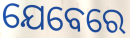
ଯେବେରେ